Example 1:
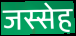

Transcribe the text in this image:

जस्सेह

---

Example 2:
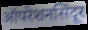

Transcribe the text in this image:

ऑपरेशनसिंदूर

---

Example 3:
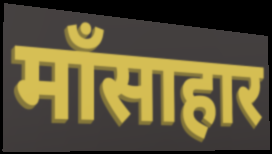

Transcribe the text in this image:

माँसाहार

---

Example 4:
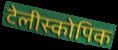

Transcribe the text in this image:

टेलीस्कोपिक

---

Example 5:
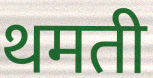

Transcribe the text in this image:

थमती